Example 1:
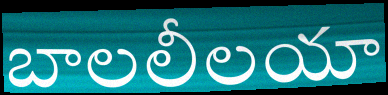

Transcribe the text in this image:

బాలలీలయా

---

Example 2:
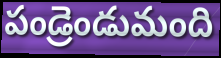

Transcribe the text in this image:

పండ్రెండుమంది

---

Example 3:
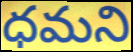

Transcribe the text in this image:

ధమని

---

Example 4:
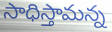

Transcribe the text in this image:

సాధిస్తామన్న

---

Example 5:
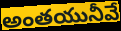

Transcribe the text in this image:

అంతయునీవే